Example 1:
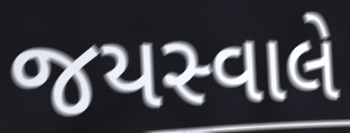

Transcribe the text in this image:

જયસ્વાલે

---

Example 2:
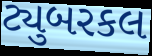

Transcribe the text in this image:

ટ્યુબરકલ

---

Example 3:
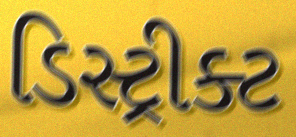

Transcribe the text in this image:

ડિસ્ટ્રીક્ટ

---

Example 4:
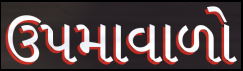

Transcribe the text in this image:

ઉપમાવાળો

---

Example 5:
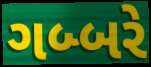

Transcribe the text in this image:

ગબ્બરે